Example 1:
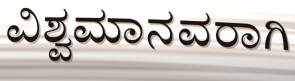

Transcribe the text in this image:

ವಿಶ್ವಮಾನವರಾಗಿ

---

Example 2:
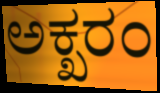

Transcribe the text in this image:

ಅಕ್ಖರಂ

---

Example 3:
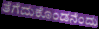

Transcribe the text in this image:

ತೆಗೆದುಕೊಂಡನೆಂದು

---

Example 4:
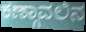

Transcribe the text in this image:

ಕಣ್ಗಾವಲಿನ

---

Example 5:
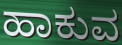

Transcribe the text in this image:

ಹಾಕುವ